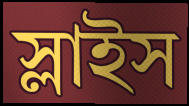
স্লাইস